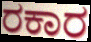
ರಕಾರ